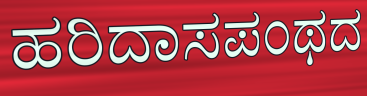
ಹರಿದಾಸಪಂಥದ